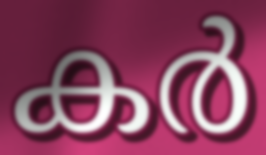
കർ